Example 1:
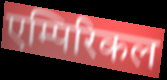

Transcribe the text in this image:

एम्पिरिकल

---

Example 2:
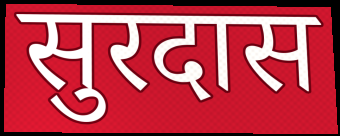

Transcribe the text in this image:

सुरदास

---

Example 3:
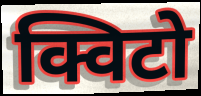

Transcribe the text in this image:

क्विटो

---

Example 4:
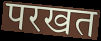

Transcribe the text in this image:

परखत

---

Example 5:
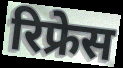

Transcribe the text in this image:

रिफ्रेस